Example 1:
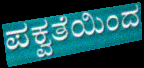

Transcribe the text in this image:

ಪಕ್ವತೆಯಿಂದ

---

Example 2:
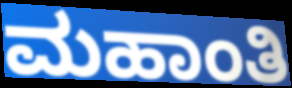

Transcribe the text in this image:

ಮಹಾಂತಿ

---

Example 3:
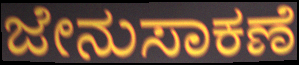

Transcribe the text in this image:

ಜೇನುಸಾಕಣೆ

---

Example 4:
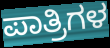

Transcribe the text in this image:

ಪಾತ್ರಿಗಳ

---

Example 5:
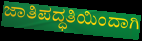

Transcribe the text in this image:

ಜಾತಿಪದ್ಧತಿಯಿಂದಾಗಿ